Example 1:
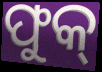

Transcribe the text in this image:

ଫୁକ୍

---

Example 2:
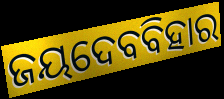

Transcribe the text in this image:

ଜୟଦେବବିହାର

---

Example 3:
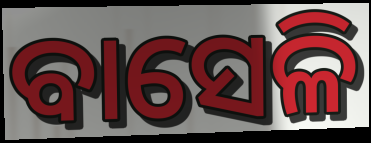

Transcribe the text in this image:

ବାସେଳି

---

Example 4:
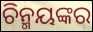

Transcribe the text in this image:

ଚିନ୍ମୟଙ୍କର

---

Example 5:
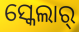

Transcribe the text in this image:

ସ୍କେଲାର୍